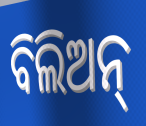
ବିଲିଅନ୍